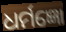
ଧର୍ମଜ୍ଞୋ